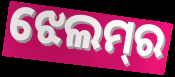
ଝେଲମ୍‌ର